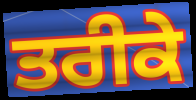
ਤਰੀਕੇ